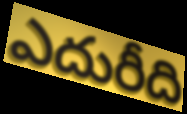
ఎదురీది